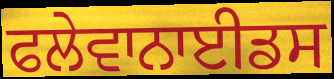
ਫਲੇਵਾਨਾਈਡਸ